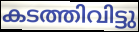
കടത്തിവിട്ടു